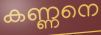
കണ്ണനെ